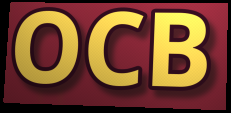
OCB